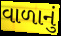
વાળાનું